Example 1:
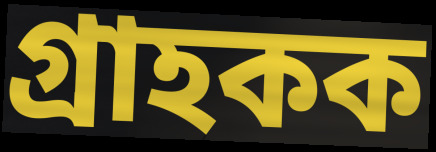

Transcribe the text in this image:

গ্ৰাহকক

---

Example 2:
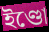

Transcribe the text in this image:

ইণ্ডো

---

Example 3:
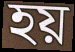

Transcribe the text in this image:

হয়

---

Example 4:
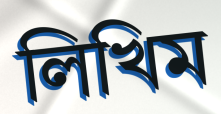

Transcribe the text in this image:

লিখিম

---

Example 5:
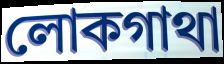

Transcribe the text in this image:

লোকগাথা